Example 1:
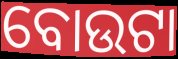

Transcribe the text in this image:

ବୋଉଟା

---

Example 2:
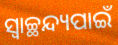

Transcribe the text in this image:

ସ୍ୱାଚ୍ଛନ୍ଦ୍ୟପାଇଁ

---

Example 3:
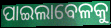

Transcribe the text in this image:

ପାଇଲାବେଳକୁ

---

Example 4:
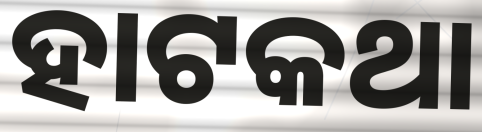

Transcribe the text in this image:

ହାଟକଥା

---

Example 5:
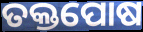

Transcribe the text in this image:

ତକ୍ତପୋଷ